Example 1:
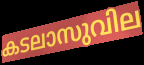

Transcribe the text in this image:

കടലാസുവില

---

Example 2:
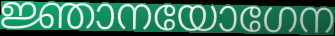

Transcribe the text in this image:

ജ്ഞാനയോഗേന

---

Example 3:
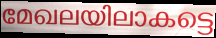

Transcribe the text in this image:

മേഖലയിലാകട്ടെ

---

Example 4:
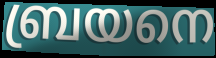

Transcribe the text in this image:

ബ്രയനെ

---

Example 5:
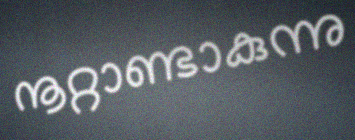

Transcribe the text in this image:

നൂറ്റാണ്ടാകുന്നു